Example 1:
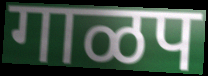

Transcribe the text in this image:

गाळप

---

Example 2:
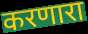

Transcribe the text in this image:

करणारा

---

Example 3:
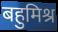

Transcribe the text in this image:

बहुमिश्र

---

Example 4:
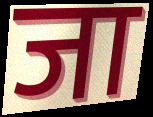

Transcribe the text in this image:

जा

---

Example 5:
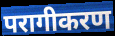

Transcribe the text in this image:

परागीकरण